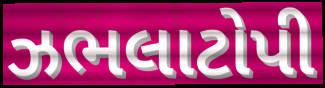
ઝભલાટોપી